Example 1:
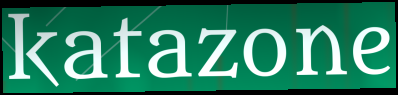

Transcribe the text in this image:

katazone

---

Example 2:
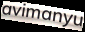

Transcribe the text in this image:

avimanyu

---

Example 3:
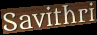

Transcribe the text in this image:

Savithri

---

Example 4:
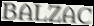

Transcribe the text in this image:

BALZAC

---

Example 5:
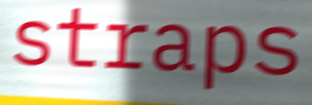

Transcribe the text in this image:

straps